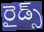
రైడ్స్